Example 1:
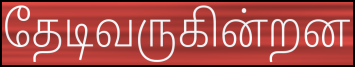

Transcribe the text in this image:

தேடிவருகின்றன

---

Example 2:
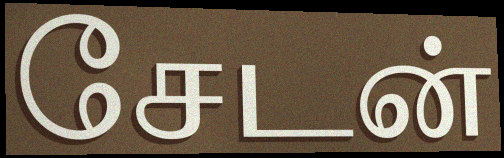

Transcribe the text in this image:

சேடன்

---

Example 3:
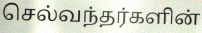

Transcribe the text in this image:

செல்வந்தர்களின்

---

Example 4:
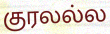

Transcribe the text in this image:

குரலல்ல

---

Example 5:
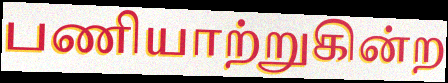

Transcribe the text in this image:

பணியாற்றுகின்ற